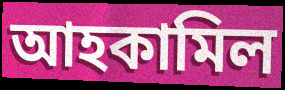
আহকামিল